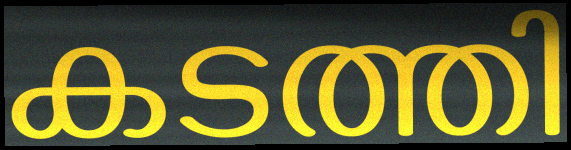
കടത്തി